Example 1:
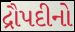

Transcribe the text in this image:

દ્રૌપદીનો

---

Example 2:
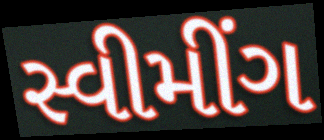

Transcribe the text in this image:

સ્વીમીંગ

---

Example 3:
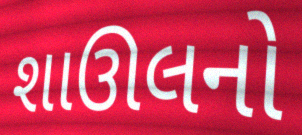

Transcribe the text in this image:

શાઊલનો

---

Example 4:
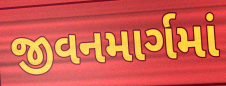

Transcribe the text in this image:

જીવનમાર્ગમાં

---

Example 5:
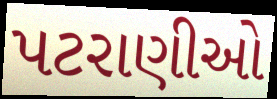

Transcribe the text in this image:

પટરાણીઓ